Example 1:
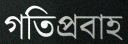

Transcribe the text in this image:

গতিপ্রবাহ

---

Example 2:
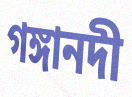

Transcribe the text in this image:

গঙ্গানদী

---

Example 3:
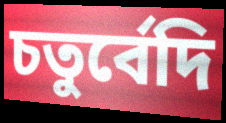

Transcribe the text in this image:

চতুর্বেদি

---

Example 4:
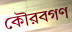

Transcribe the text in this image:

কৌরবগণ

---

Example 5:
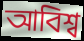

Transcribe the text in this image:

আবিশ্ব